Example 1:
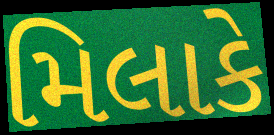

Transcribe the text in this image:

મિલાકે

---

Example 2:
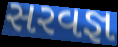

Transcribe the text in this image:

સરવજ્ઞ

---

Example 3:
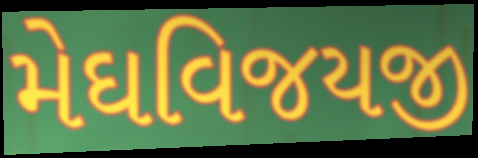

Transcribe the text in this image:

મેઘવિજયજી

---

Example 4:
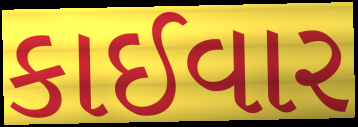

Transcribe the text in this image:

કાઈવાર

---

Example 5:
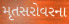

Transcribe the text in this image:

મૃતસરોવરના